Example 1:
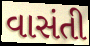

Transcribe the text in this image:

વાસંતી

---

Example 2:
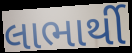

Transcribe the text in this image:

લાભાર્થી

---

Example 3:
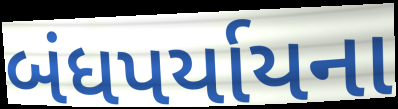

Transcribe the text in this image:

બંધપર્યાયના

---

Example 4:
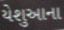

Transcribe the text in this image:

યેશુઆના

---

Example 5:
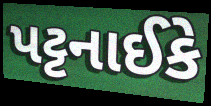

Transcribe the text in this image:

પટ્ટનાઈકે